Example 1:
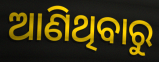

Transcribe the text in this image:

ଆଣିଥିବାରୁ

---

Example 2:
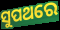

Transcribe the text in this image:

ସୁପଥରେ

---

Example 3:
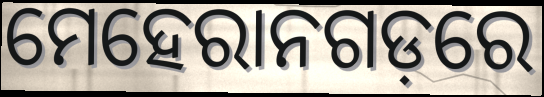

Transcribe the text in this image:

ମେହେରାନଗଡ଼ରେ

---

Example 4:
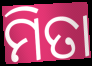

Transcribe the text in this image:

ମିତା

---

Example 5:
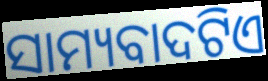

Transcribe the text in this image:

ସାମ୍ୟବାଦଟିଏ